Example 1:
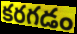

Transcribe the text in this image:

కరగడం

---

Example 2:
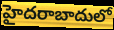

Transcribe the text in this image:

హైదరాబాదులో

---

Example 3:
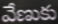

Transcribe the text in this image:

వేణుకు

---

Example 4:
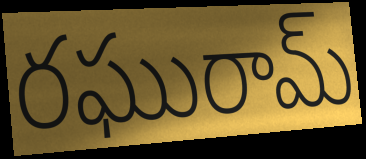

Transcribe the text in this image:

రఘురామ్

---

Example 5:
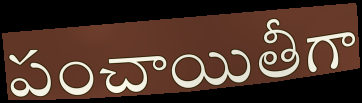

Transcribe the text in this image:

పంచాయితీగా